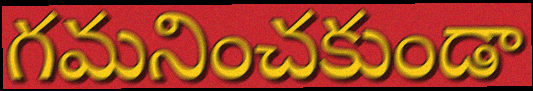
గమనించకుండా